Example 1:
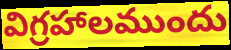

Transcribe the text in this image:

విగ్రహాలముందు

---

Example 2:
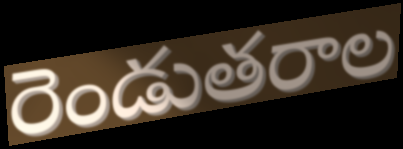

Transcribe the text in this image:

రెండుతరాల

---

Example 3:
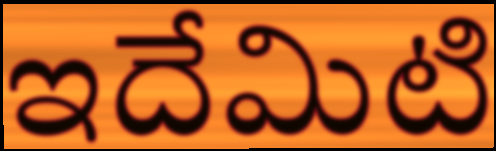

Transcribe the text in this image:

ఇదేమిటి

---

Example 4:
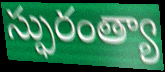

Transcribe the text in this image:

స్ఫురంత్యా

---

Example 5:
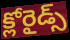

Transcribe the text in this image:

క్లోరైడ్స్